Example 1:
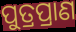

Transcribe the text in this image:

ପୁତ୍ରପ୍ରାଣ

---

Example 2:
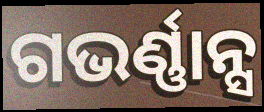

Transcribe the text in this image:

ଗଭର୍ଣ୍ଣାନ୍ସ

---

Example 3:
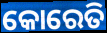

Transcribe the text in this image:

କୋରେତି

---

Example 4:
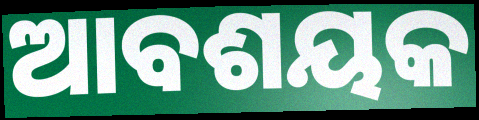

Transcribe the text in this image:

ଆବଶୟକ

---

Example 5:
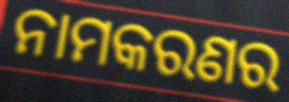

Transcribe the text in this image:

ନାମକରଣର